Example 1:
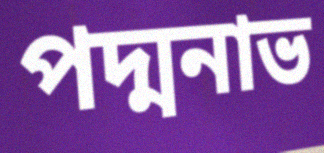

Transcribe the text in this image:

পদ্মনাভ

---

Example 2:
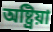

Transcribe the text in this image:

অষ্ট্রিয়া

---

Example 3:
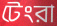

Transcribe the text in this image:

টেংরা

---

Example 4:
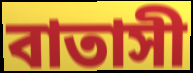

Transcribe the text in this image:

বাতাসী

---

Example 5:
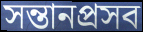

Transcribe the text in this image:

সন্তানপ্রসব